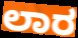
ಲಾರ